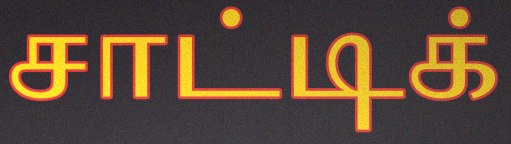
சாட்டிக்